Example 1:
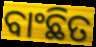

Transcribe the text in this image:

ବାଂଛିତ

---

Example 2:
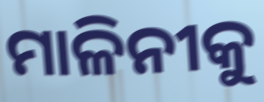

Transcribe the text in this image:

ମାଳିନୀକୁ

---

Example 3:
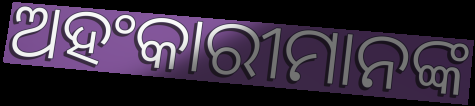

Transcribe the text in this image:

ଅହଂକାରୀମାନଙ୍କ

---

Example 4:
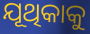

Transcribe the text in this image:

ଯୂଥିକାକୁ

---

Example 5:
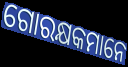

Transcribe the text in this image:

ଗୋରକ୍ଷକମାନେ